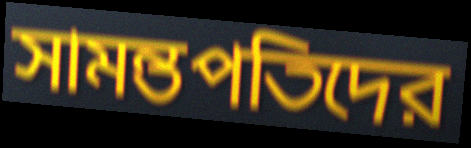
সামন্তপতিদের